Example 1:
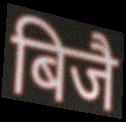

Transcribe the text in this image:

बिजै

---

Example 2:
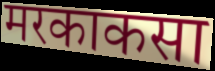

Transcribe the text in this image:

मरकाकसा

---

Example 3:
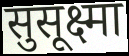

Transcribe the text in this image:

सुसूक्ष्मा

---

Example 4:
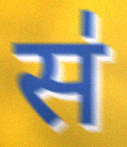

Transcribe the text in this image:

स॑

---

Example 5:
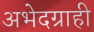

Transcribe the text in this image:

अभेदग्राही